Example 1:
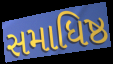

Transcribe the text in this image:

સમાધિષ્ઠ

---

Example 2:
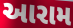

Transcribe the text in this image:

આરામ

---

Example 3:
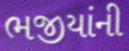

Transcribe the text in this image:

ભજીયાંની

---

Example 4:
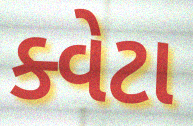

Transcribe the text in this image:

ક્વેટા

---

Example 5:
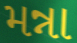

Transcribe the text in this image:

મન્ના